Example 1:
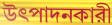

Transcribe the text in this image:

উৎপাদনকারী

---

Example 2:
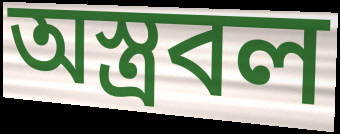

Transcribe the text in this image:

অস্ত্রবল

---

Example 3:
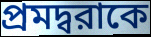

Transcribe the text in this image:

প্রমদ্বরাকে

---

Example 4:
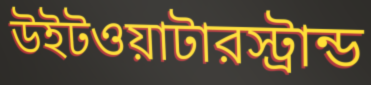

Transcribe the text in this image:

উইটওয়াটারস্ট্রান্ড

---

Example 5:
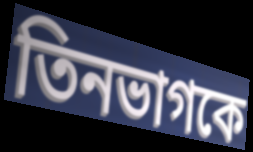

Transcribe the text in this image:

তিনভাগকে